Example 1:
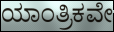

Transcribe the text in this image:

ಯಾಂತ್ರಿಕವೇ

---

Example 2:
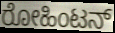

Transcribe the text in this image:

ರೋಹಿಂಟನ್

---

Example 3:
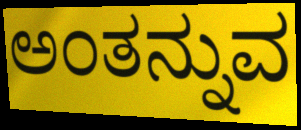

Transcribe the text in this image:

ಅಂತನ್ನುವ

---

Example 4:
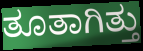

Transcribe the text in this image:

ತೂತಾಗಿತ್ತು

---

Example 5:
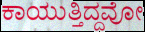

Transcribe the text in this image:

ಕಾಯುತ್ತಿದ್ದವೋ